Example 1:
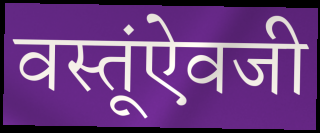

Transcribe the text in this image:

वस्तूंऐवजी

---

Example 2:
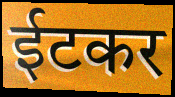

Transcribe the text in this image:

ईटकर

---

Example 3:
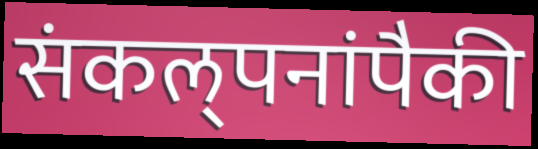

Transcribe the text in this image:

संकल्पनांपैकी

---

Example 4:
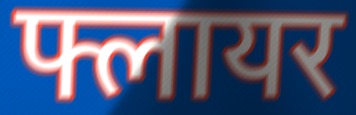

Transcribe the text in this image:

फ्लायर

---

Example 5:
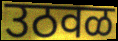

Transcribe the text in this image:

उठवळ